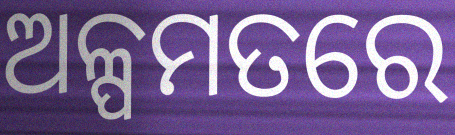
ଅଳ୍ପମତରେ